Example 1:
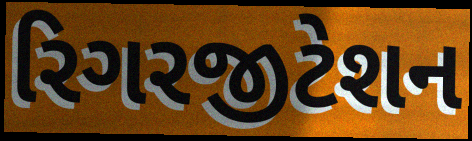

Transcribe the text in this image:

રિગરજીટેશન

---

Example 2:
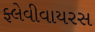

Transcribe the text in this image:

ફ્લેવીવાયરસ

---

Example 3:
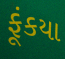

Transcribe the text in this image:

ફૂંકયા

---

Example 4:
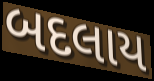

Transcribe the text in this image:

બદલાય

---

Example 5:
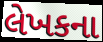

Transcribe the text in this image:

લેખકના